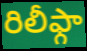
రిలీఫ్గా